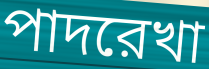
পাদরেখা